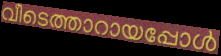
വീടെത്താറായപ്പോൾ